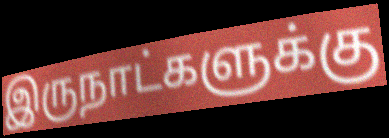
இருநாட்களுக்கு